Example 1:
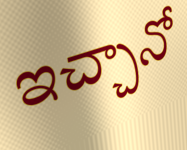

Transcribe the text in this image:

ఇచ్చానో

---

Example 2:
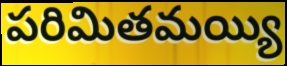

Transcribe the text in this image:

పరిమితమయ్యి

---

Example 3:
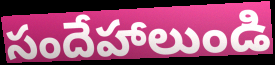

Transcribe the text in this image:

సందేహాలుండి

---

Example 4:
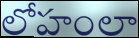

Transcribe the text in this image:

లోహంలా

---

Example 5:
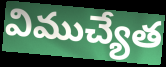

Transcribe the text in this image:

విముచ్యేత